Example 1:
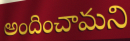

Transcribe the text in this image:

అందించామని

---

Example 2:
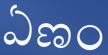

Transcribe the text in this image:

ఏణం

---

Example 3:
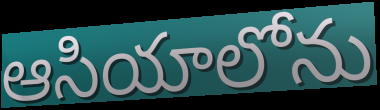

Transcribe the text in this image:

ఆసియాలోను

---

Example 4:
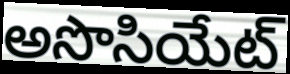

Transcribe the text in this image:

అసొసియేట్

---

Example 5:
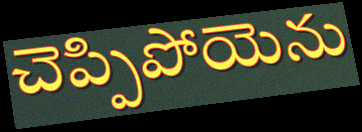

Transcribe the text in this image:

చెప్పిపోయెను